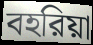
বহরিয়া